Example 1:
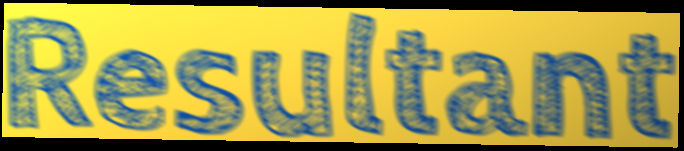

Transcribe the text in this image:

Resultant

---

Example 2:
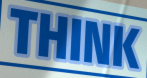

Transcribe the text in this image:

THINK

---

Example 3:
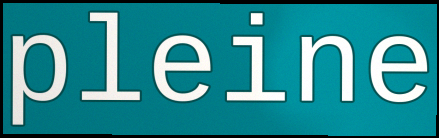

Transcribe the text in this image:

pleine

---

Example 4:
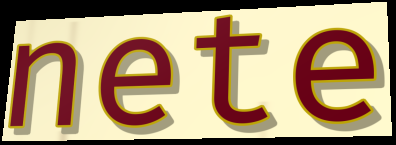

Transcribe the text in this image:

nete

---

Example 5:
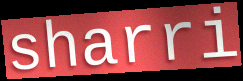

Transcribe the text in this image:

sharri